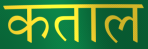
कताल